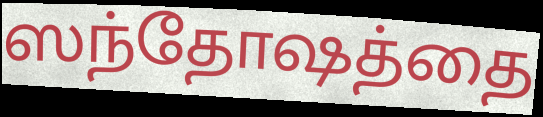
ஸந்தோஷத்தை